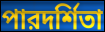
পারদর্শিতা